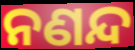
ନଣନ୍ଦ